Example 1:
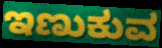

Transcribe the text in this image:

ಇಣುಕುವ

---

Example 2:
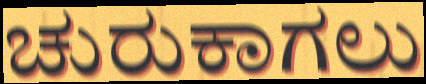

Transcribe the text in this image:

ಚುರುಕಾಗಲು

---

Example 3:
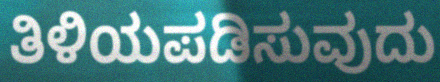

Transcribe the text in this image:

ತಿಳಿಯಪಡಿಸುವುದು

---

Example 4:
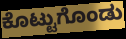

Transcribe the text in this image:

ಕೊಟ್ಟುಗೊಂಡು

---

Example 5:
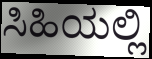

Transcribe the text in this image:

ಸಿಹಿಯಲ್ಲಿ